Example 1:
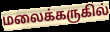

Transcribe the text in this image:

மலைக்கருகில்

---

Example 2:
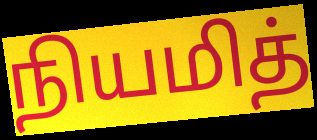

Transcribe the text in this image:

நியமித்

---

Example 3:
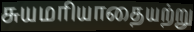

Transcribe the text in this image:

சுயமரியாதையற்று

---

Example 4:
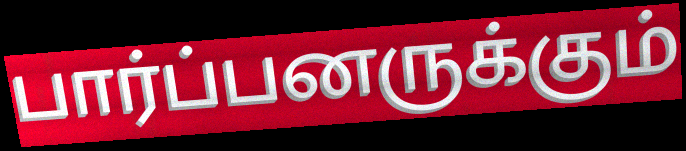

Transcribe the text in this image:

பார்ப்பனருக்கும்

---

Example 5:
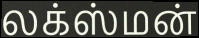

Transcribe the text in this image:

லக்ஸ்மன்